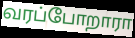
வரப்போறாரா